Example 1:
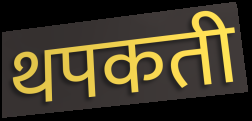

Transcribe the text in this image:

थपकती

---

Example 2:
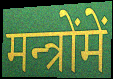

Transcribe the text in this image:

मन्त्रोंमें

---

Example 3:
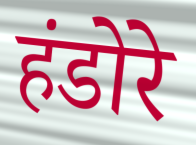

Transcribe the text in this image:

हंडोरे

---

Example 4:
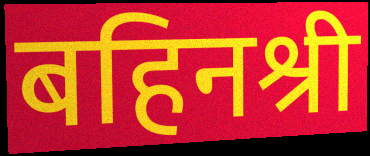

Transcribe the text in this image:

बहिनश्री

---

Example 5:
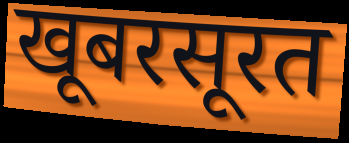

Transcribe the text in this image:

खूबरसूरत